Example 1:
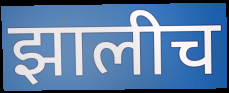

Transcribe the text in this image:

झालीच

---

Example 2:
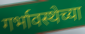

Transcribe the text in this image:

गर्भावस्थेच्या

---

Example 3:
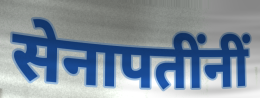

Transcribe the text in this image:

सेनापतींनीं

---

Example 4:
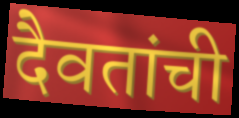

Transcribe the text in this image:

दैवतांची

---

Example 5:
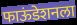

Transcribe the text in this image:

फाऊंडेशनला